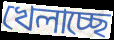
খেলাচ্ছে